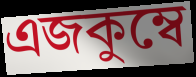
এজকুম্বে